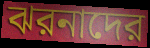
ঝরনাদের